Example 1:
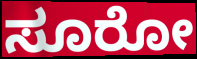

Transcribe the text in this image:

ಸೂರೋ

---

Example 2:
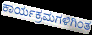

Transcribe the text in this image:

ಕಾರ್ಯಕ್ರಮಗಳಿಗಿಂತ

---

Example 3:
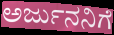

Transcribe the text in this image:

ಅರ್ಜುನನಿಗೆ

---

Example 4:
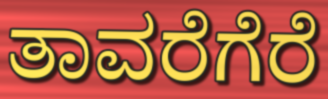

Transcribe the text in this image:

ತಾವರೆಗೆರೆ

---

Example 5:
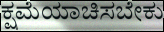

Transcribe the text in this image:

ಕ್ಷಮೆಯಾಚಿಸಬೇಕು